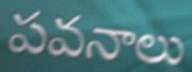
పవనాలు